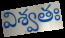
విశ్వతః